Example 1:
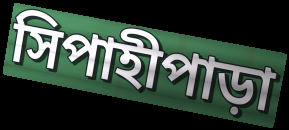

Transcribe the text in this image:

সিপাহীপাড়া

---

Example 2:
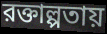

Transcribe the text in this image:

রক্তাল্পতায়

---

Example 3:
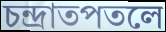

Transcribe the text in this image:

চন্দ্রাতপতলে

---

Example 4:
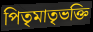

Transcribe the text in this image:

পিতৃমাতৃভক্তি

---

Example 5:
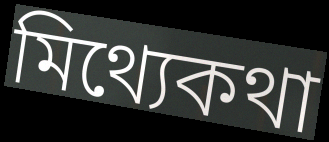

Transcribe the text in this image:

মিথ্যেকথা